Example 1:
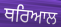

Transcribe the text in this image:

ਥਰਿਆਲ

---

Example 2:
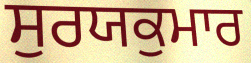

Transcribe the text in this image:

ਸੁਰਯਕੁਮਾਰ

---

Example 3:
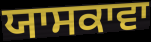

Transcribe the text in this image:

ਯਾਸਕਾਵਾ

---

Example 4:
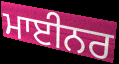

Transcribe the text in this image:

ਮਾਈਨਰ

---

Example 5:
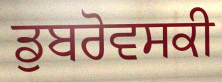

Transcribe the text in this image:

ਡੁਬਰੋਵਸਕੀ